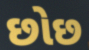
છોછ